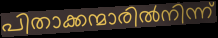
പിതാക്കന്മാരിൽനിന്ന്